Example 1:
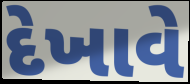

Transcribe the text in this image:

દેખાવે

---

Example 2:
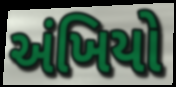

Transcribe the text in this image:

અંખિયો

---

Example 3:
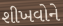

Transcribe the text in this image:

શીખવોને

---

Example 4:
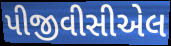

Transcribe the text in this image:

પીજીવીસીએલ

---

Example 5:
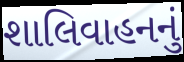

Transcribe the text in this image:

શાલિવાહનનું